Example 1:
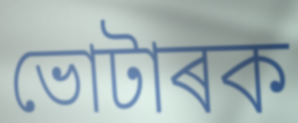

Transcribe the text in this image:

ভোটাৰক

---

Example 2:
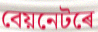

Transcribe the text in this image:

বেয়নেটৰে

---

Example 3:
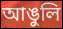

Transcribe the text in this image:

আঙুলি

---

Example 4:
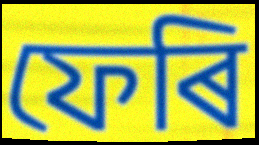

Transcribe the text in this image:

ফেৰি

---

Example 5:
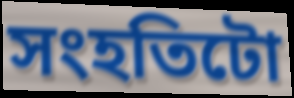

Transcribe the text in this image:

সংহতিটো